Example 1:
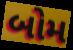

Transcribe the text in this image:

બોમ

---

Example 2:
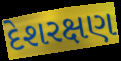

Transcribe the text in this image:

દેશરક્ષણ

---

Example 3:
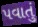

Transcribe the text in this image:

પવાતું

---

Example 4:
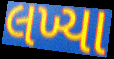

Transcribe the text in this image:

લખ્યા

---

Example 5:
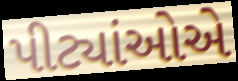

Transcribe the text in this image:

પીટ્યાંઓએ